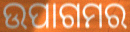
ଉପାଗମର